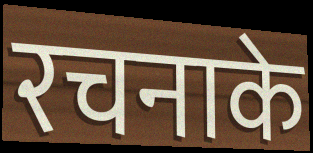
रचनाके